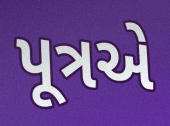
પૂત્રએ